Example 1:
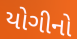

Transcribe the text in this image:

યોગીનો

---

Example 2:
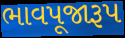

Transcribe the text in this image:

ભાવપૂજારૂપ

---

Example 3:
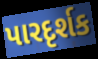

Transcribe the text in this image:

પારદૃર્શક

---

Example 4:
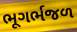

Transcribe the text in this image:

ભૂગર્ભજળ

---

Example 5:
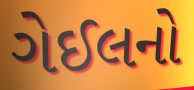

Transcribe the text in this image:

ગેઈલનો